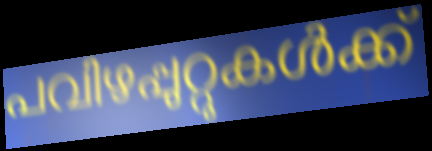
പവിഴപ്പുറ്റുകൾക്ക്